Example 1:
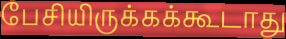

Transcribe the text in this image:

பேசியிருக்கக்கூடாது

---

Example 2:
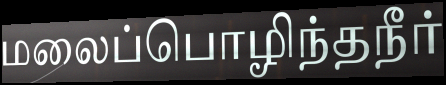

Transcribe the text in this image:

மலைப்பொழிந்தநீர்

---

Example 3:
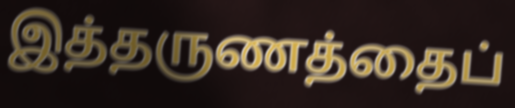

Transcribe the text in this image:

இத்தருணத்தைப்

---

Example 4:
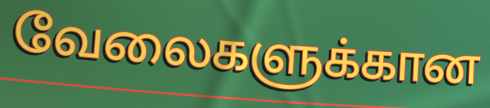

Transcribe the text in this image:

வேலைகளுக்கான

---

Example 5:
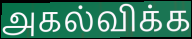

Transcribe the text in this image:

அகல்விக்க